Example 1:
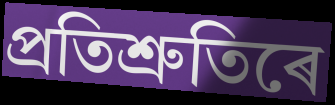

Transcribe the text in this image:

প্ৰতিশ্ৰুতিৰে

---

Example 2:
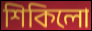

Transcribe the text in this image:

শিকিলো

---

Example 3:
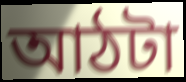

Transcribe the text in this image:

আঠটা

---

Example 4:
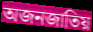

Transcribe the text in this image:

অজনজাতিয়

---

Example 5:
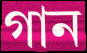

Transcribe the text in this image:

গান